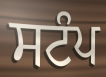
ਸਟੰਪ